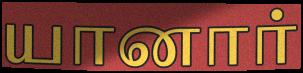
யானார்